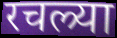
रचल्या